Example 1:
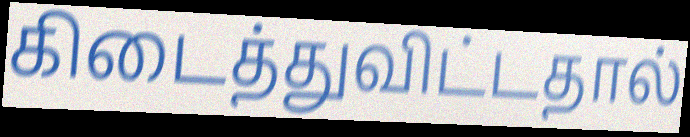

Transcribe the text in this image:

கிடைத்துவிட்டதால்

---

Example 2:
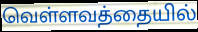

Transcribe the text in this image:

வெள்ளவத்தையில்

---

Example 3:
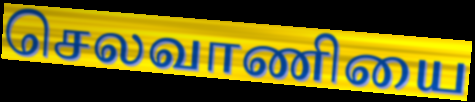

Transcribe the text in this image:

செலவாணியை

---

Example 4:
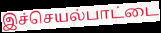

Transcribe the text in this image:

இச்செயல்பாட்டை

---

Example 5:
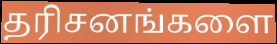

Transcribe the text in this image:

தரிசனங்களை